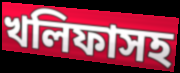
খলিফাসহ